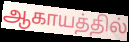
ஆகாயத்தில்